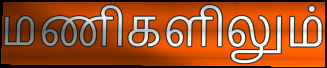
மணிகளிலும்